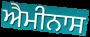
ਐਮੀਨਾਸ